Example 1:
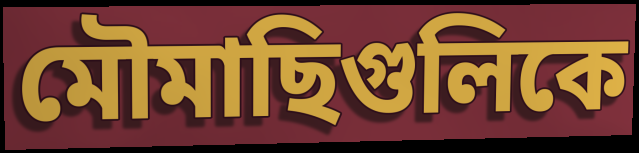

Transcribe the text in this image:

মৌমাছিগুলিকে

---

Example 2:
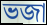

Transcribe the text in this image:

ভজা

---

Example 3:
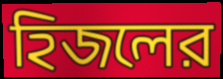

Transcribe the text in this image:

হিজলের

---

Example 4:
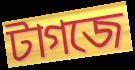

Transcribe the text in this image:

টাগজে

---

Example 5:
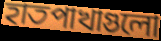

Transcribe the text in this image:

হাতপাখাগুলো